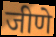
जीणे